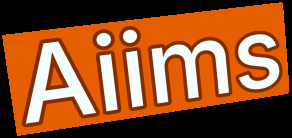
Aiims